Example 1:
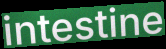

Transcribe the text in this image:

intestine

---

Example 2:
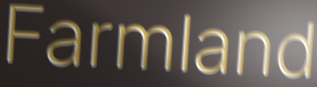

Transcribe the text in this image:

Farmland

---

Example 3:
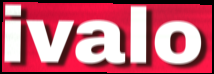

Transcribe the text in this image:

ivalo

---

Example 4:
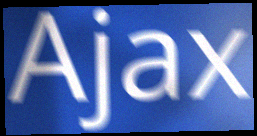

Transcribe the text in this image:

Ajax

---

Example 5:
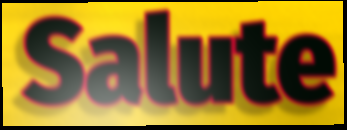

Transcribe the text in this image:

Salute